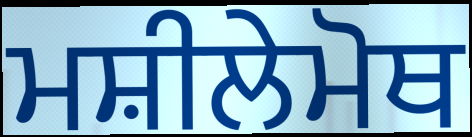
ਮਸ਼ੀਲੇਮੋਥ